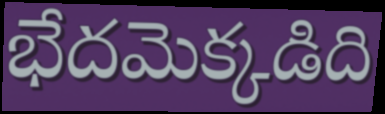
భేదమెక్కడిది